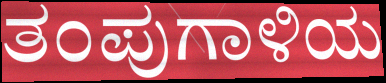
ತಂಪುಗಾಳಿಯ